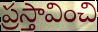
ప్రస్తావించి